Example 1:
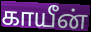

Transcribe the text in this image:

காயீன்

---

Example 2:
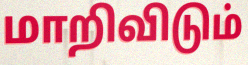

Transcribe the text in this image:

மாறிவிடும்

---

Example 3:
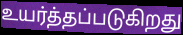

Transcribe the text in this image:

உயர்த்தப்படுகிறது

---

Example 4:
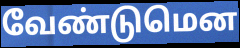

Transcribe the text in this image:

வேண்டுமென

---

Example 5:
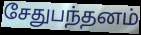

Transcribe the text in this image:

சேதுபந்தனம்